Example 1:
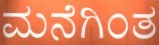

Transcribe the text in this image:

ಮನೆಗಿಂತ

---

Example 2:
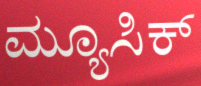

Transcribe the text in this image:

ಮ್ಯೂಸಿಕ್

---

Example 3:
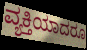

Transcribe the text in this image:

ವ್ಯಕ್ತಿಯಾದರೂ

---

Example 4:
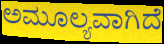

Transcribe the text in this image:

ಅಮೂಲ್ಯವಾಗಿದೆ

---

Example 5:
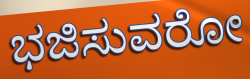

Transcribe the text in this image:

ಭಜಿಸುವರೋ